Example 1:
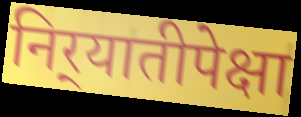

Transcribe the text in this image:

निर्यातीपेक्षा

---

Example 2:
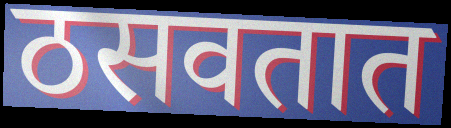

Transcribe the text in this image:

ठसवतात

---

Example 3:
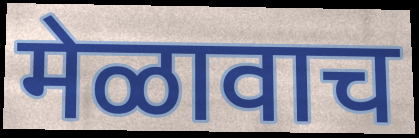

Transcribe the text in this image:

मेळावाच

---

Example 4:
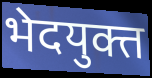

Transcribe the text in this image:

भेदयुक्त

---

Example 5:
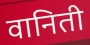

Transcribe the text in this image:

वानिती